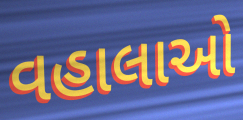
વહાલાઓ